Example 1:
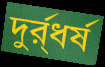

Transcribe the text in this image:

দুর্র্ধর্ষ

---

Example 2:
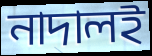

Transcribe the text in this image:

নাদালই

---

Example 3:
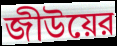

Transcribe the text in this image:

জীউয়ের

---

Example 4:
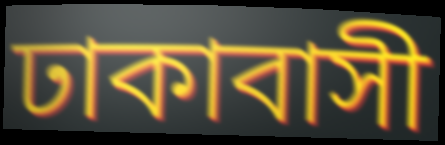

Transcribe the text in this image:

ঢাকাবাসী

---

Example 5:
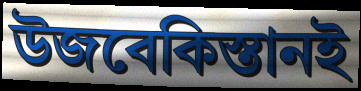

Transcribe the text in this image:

উজবেকিস্তানই